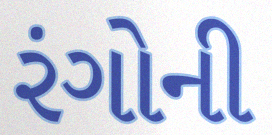
રંગોની